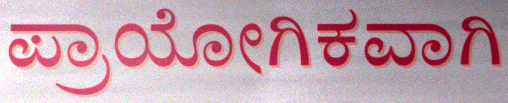
ಪ್ರಾಯೋಗಿಕವಾಗಿ